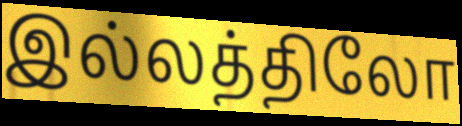
இல்லத்திலோ